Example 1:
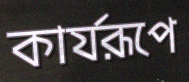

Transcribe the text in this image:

কার্যরূপে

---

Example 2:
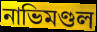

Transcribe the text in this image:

নাভিমণ্ডল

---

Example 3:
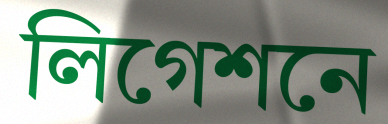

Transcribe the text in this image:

লিগেশনে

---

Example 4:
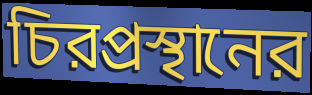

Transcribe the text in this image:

চিরপ্রস্থানের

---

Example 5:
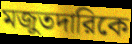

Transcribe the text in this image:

মজুতদারিকে